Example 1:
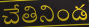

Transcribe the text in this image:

చేతినిండ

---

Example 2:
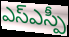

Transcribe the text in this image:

ఎస్ఎస్పీ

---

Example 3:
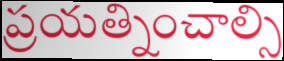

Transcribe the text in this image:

ప్రయత్నించాల్సి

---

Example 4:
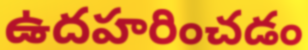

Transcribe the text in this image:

ఉదహరించడం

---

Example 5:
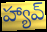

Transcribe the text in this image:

హ్యావ్